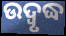
ଉଦ୍ବୃଦ୍ଧ